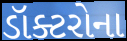
ડૉક્ટરોના